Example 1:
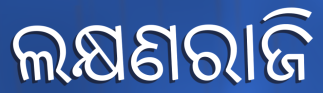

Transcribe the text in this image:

ଲକ୍ଷଣରାଜି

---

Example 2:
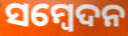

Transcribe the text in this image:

ସମ୍ଵେଦନ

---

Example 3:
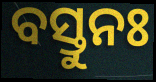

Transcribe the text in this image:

ବସ୍ତୁନଃ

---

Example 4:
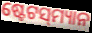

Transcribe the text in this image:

ଷ୍ଟେଟସ୍‌ମ୍ୟାନ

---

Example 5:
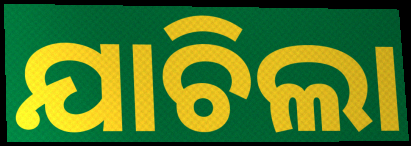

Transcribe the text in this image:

ଯାଚିଲା